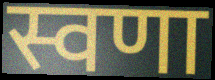
स्वणा